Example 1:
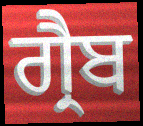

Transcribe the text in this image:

ਗ੍ਰੈਬ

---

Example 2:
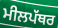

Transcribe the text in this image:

ਮੀਲਪੱਥਰ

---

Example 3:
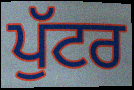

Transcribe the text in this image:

ਪੁੱਟਰ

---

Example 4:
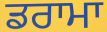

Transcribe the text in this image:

ਡਰਾਮਾ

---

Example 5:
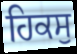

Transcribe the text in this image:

ਹਿਕਸੁ